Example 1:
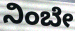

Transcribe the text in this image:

ನಿಂಬೇ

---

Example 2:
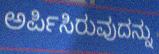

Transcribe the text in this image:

ಅರ್ಪಿಸಿರುವುದನ್ನು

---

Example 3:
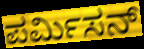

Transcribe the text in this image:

ಪರ್ಮಿಸನ್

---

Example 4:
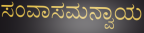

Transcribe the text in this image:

ಸಂವಾಸಮನ್ವಾಯ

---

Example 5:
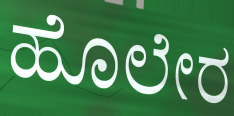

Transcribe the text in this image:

ಹೊಲೇರ